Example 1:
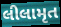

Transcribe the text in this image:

લીલામૃત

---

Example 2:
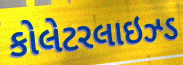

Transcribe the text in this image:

કોલેટરલાઇઝ્ડ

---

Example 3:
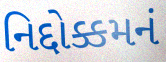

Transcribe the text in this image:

નિદ્દોક્કમનં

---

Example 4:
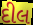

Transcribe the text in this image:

દીલ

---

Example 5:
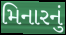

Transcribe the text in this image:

મિનારનું